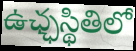
ఉఛ్ఛస్థితిలో